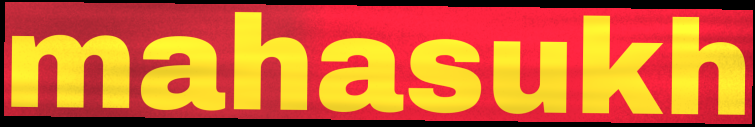
mahasukh